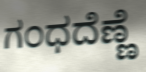
ಗಂಧದೆಣ್ಣೆ